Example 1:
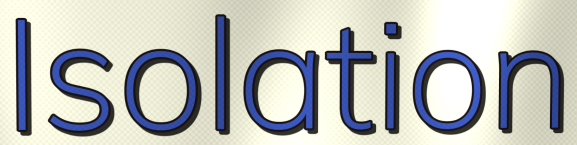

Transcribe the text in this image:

Isolation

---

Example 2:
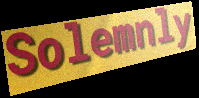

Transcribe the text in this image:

Solemnly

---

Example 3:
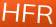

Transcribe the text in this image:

HFR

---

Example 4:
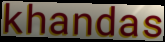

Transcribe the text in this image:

khandas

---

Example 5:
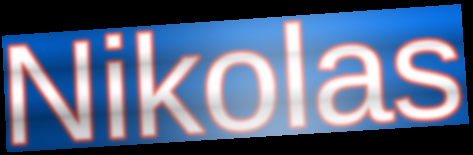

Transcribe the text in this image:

Nikolas